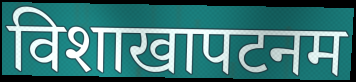
विशाखापटनम